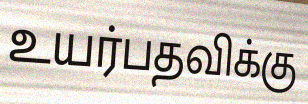
உயர்பதவிக்கு